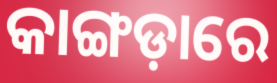
କାଙ୍ଗଡ଼ାରେ